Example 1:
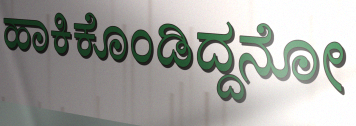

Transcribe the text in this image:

ಹಾಕಿಕೊಂಡಿದ್ದನೋ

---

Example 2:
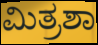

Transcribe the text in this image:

ಮಿತ್ರಶಾ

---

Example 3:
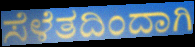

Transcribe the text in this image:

ಸೆಳೆತದಿಂದಾಗಿ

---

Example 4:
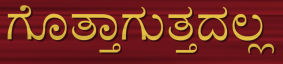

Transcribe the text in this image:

ಗೊತ್ತಾಗುತ್ತದಲ್ಲ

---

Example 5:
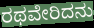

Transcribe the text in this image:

ರಥವೇರಿದನು